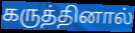
கருத்தினால்